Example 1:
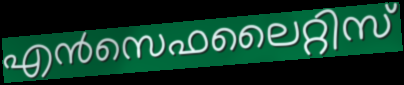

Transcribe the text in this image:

എൻസെഫലൈറ്റിസ്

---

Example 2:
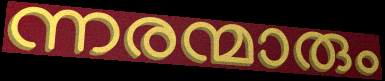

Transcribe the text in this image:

ന്നരന്മാരും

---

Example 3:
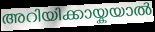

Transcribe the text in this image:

അറിയിക്കായ്കയാൽ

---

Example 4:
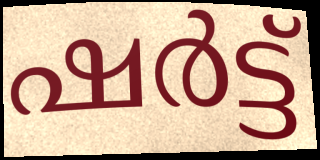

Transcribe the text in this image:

ഷർട്ട്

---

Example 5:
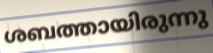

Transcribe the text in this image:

ശബത്തായിരുന്നു